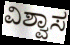
ವಿಶ್ವಾಸ